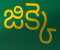
జిక్కె